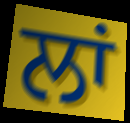
ਲਾਂ